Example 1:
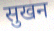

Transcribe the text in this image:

सुखन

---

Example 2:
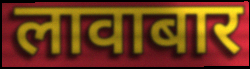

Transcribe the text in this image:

लावाबार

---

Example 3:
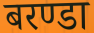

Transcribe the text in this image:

बरण्डा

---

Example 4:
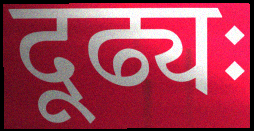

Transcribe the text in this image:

दूढ्यः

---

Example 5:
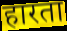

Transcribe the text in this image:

हारता